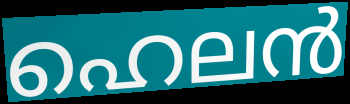
ഹെലൻ